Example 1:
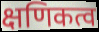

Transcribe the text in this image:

क्षणिकत्व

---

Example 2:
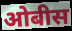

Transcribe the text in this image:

ओबीस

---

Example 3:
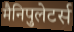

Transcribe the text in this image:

मैनिपुलेटर्स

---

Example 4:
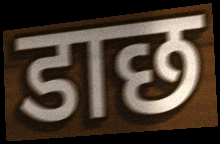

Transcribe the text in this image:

डाछ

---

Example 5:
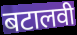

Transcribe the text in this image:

बटालवी